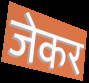
जेकर